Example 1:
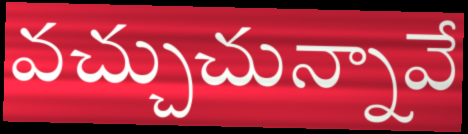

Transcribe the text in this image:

వచ్చుచున్నావే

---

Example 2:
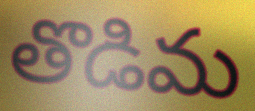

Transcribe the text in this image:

తొడిమ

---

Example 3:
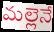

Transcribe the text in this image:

మల్లెనే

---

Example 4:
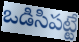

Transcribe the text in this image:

ఒడిసిపట్టే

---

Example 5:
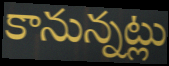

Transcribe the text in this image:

కానున్నట్లు